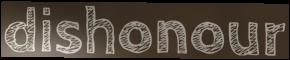
dishonour